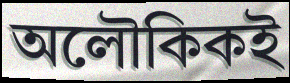
অলৌকিকই